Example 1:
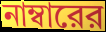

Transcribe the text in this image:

নাম্বারের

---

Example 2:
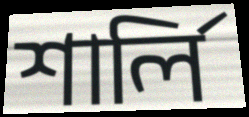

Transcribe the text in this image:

শার্লি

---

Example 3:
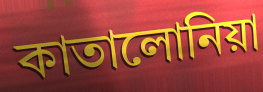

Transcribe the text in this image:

কাতালোনিয়া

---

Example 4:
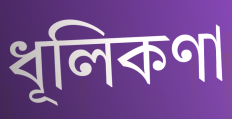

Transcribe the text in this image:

ধূলিকণা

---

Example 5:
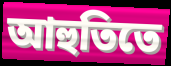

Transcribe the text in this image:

আহুতিতে